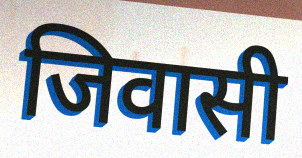
जिवासी